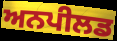
ਅਨਪੀਲਡ